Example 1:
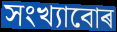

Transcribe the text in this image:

সংখ্যাবোৰ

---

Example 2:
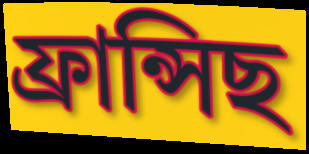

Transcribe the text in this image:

ফ্ৰান্সিছ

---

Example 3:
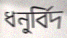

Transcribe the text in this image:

ধনুৰ্বিদ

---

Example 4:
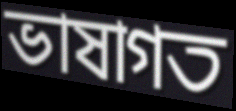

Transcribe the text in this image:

ভাষাগত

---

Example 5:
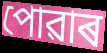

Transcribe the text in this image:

পোৱাৰ